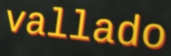
vallado